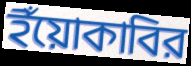
ইঁয়োকাবির